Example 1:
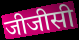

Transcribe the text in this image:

जीजीसी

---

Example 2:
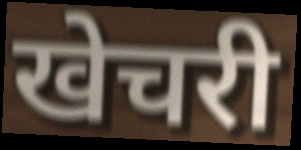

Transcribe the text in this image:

खेचरी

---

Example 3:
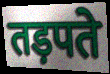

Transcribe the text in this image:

तड़पते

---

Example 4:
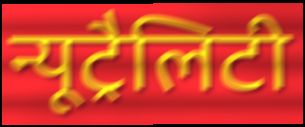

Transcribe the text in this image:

न्यूट्रैलिटी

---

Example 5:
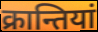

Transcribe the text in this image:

क्रान्तियां